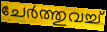
ചേർത്തുവച്ച്